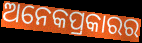
ଅନେକପ୍ରକାରର